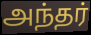
அந்தர்